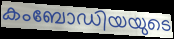
കംബോഡിയയുടെ